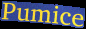
Pumice